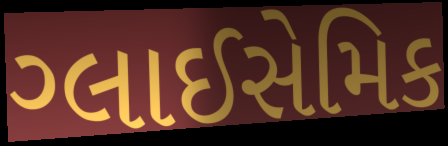
ગ્લાઈસેમિક